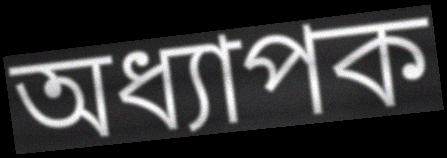
অধ্যাপক